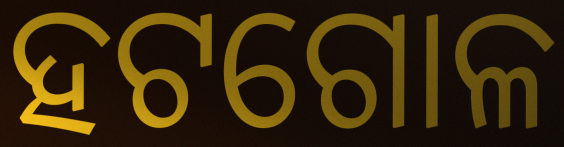
ହଟଗୋଳ